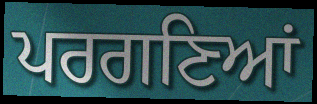
ਪਰਗਣਿਆਂ